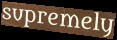
supremely